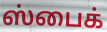
ஸ்பைக்